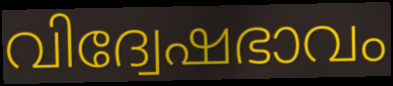
വിദ്വേഷഭാവം